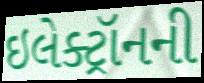
ઇલેક્ટ્રૉનની